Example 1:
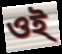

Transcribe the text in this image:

ওই্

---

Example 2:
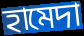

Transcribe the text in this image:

হামেদা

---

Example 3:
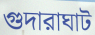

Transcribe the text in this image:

গুদারাঘাট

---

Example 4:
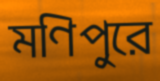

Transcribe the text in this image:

মণিপুরে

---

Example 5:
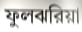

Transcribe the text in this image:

ফুলঝরিয়া